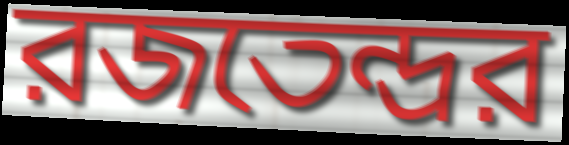
রজতেন্দ্রর